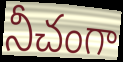
నీచంగా